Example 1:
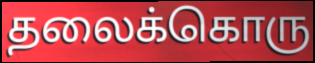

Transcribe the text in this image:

தலைக்கொரு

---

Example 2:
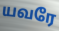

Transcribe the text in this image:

யவரே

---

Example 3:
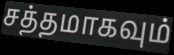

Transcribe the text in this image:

சத்தமாகவும்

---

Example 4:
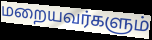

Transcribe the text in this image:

மறையவர்களும்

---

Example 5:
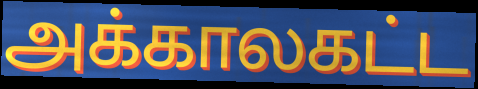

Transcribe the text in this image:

அக்காலகட்ட